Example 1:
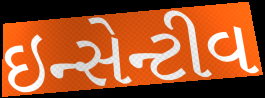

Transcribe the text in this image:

ઇન્સેન્ટીવ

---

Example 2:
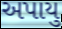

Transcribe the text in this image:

અપાયુ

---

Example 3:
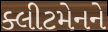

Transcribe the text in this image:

ક્લીટમેનને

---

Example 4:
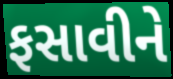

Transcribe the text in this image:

ફસાવીને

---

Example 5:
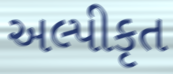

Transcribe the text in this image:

અલ્પીકૃત